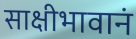
साक्षीभावानं